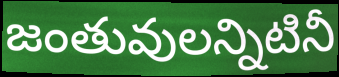
జంతువులన్నిటినీ